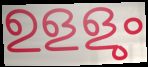
ഉളളും